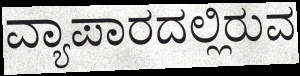
ವ್ಯಾಪಾರದಲ್ಲಿರುವ